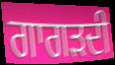
ਗਾਗੜਦੀ